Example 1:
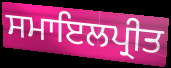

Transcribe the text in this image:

ਸਮਾਇਲਪ੍ਰੀਤ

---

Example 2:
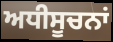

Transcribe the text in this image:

ਅਧੀਸੂਚਨਾਂ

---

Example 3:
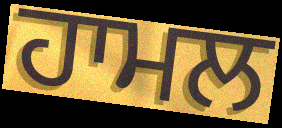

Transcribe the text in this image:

ਹਾਮਲ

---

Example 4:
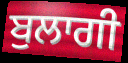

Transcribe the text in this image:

ਬੁਲਾਗੀ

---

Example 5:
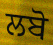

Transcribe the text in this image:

ਲਬੋ